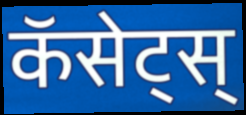
कॅसेट्स्